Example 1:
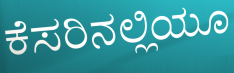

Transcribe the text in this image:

ಕೆಸರಿನಲ್ಲಿಯೂ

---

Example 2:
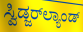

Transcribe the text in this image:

ಸ್ವಿಡ್ಜರ್‌ಲ್ಯಾಂಡ್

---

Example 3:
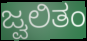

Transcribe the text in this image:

ಜ್ವಲಿತಂ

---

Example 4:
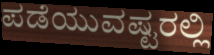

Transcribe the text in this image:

ಪಡೆಯುವಷ್ಟರಲ್ಲಿ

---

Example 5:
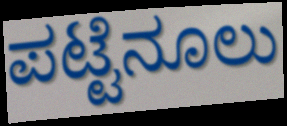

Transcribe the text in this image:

ಪಟ್ಟೆನೂಲು